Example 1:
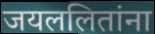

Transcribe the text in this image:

जयललितांना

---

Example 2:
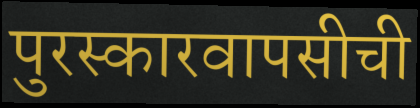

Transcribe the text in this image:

पुरस्कारवापसीची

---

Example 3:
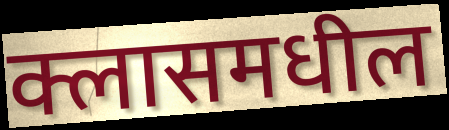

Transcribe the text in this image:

क्लासमधील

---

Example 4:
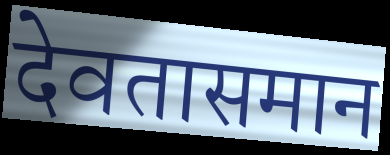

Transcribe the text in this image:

देवतासमान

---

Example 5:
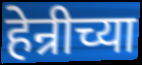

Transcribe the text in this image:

हेन्रीच्या